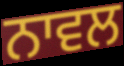
ਨਾਵਲ